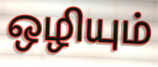
ஒழியும்